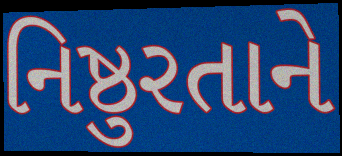
નિષ્ઠુરતાને